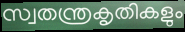
സ്വതന്ത്രകൃതികളും